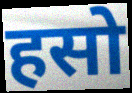
हसो